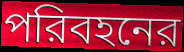
পরিবহনের